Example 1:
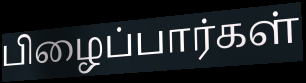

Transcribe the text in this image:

பிழைப்பார்கள்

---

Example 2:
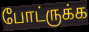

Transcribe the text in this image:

போட்ருக்க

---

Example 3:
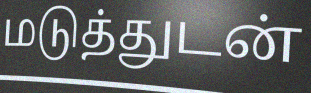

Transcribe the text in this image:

மடுத்துடன்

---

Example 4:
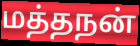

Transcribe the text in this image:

மத்தநன்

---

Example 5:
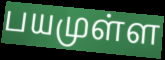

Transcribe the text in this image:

பயமுள்ள